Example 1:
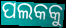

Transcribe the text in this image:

ପଲକକୁ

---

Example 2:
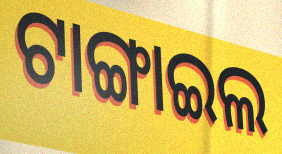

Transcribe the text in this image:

ଟାଙ୍ଗାଇଲ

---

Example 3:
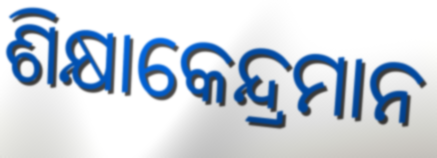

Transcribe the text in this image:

ଶିକ୍ଷାକେନ୍ଦ୍ରମାନ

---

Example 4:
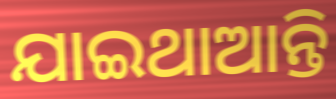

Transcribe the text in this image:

ଯାଇଥାଆନ୍ତି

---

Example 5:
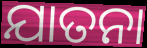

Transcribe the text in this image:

ଯାତନା